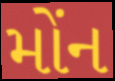
મોંન